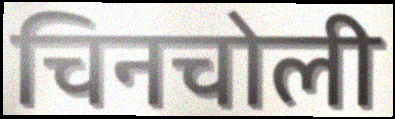
चिनचोली